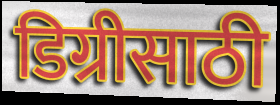
डिग्रीसाठी